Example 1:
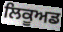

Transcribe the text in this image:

ਲਿਕੂਅਡ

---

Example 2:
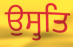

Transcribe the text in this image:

ਉਸ੍ਤਤਿ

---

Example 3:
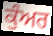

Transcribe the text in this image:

ਕੁੰਅਰ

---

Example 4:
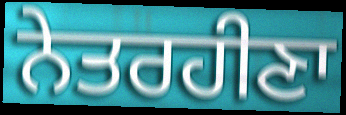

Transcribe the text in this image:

ਨੇਤਰਹੀਣਾ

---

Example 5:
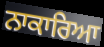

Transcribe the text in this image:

ਨਾਕਾਰਿਆ